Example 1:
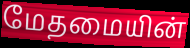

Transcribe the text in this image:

மேதமையின்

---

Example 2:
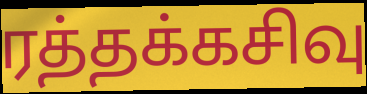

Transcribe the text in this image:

ரத்தக்கசிவு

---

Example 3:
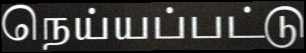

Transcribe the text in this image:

நெய்யப்பட்டு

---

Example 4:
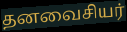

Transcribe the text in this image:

தனவைசியர்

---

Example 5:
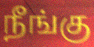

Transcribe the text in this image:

நீங்கு